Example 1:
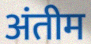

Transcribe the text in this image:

अंतीम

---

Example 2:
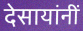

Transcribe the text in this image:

देसायांनीं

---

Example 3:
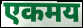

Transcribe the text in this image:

एकमय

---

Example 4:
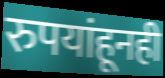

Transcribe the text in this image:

रुपयांहूनही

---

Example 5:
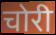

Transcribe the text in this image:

चोरी